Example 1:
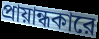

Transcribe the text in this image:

প্রায়ান্ধকারে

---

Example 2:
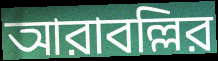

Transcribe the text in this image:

আরাবল্লির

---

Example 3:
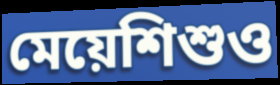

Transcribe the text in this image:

মেয়েশিশুও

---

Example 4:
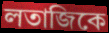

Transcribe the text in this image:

লতাজিকে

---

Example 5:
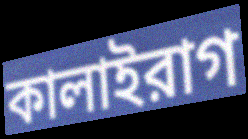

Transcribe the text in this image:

কালাইরাগ